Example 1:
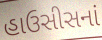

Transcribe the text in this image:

હાઉસીસનાં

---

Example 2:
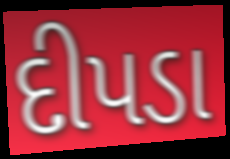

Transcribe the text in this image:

દીપડા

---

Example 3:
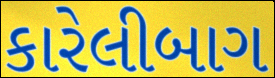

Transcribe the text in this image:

કારેલીબાગ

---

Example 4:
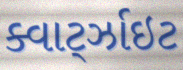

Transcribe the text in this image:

ક્વાર્ટ્ઝાઇટ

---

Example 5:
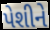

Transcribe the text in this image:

પેશીને